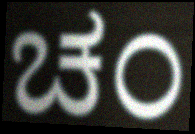
ಚಂ